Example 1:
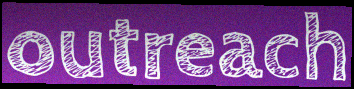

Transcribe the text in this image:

outreach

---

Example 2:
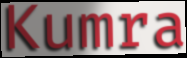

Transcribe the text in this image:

Kumra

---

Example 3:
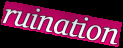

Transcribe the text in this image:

ruination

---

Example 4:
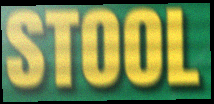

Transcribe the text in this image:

STOOL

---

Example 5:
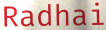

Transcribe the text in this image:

Radhai